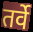
तर्वे